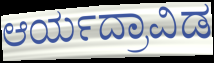
ಆರ್ಯದ್ರಾವಿಡ